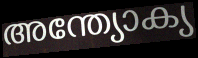
അന്ത്യോക്യ